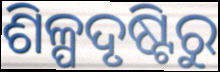
ଶିଳ୍ପଦୃଷ୍ଟିରୁ